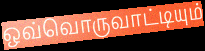
ஒவ்வொருவாட்டியும்